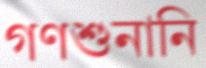
গণশুনানি